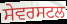
ਸੇਵਰਸਟਲ